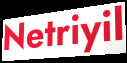
Netriyil